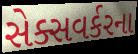
સેક્સવર્કરના